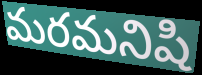
మరమనిషి